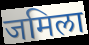
जमिला